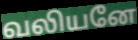
வலியனே